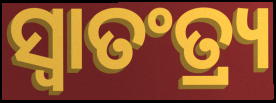
ସ୍ଵାତଂତ୍ର୍ୟ